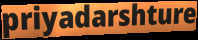
priyadarshture